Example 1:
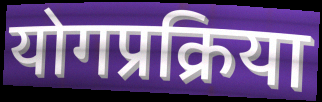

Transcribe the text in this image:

योगप्रक्रिया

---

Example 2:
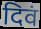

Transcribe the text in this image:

दिवं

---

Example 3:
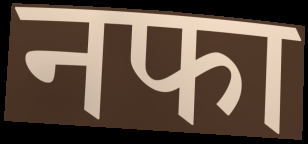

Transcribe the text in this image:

नफा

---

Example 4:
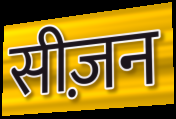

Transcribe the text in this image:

सीज़न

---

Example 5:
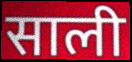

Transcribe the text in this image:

साली